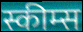
स्‍कीम्‍स